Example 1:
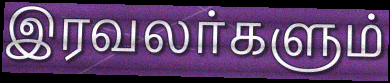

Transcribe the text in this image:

இரவலர்களும்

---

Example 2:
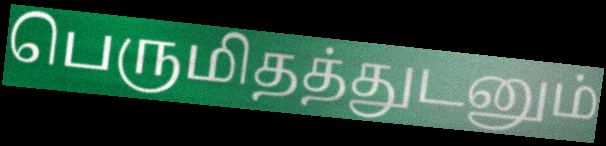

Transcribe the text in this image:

பெருமிதத்துடனும்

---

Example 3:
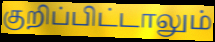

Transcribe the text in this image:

குறிப்பிட்டாலும்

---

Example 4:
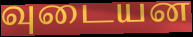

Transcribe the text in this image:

வுடையன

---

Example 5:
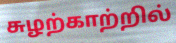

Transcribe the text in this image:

சுழற்காற்றில்